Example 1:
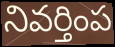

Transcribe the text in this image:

నివర్తింప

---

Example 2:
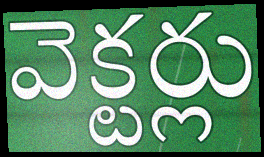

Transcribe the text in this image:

వెక్టర్లు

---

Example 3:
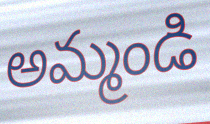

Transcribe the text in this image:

అమ్మండి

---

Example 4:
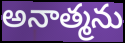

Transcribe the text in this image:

అనాత్మను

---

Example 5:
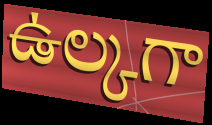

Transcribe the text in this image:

ఉల్కగా